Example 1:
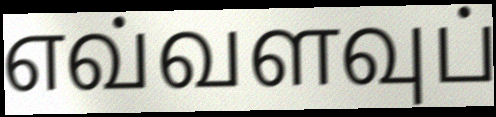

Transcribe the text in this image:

எவ்வளவுப்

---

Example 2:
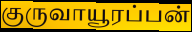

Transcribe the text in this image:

குருவாயூரப்பன்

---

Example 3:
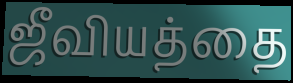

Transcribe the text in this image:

ஜீவியத்தை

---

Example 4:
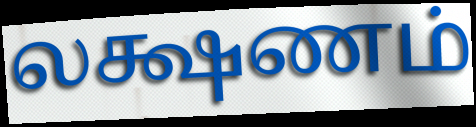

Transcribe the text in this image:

லக்ஷணம்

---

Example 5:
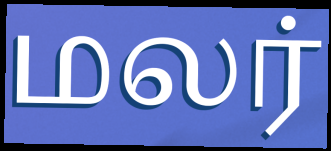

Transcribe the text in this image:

மலர்